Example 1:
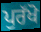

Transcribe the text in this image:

ਪੁਰੱਖੋ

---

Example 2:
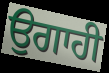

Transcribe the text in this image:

ਉਗਾਹੀ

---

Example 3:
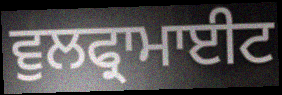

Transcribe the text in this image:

ਵੁਲਫ੍ਰਾਮਾਈਟ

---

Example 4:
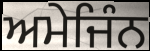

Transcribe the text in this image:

ਅਮੇਜਿੰਨ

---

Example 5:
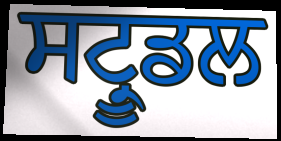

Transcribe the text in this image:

ਸਟ੍ਰੂਡਲ